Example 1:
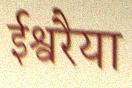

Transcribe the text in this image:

ईश्वरैया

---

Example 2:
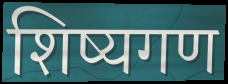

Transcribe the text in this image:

शिष्यगण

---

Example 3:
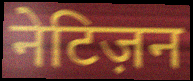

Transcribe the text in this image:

नेटिज़न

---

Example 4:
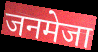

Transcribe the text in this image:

जनमेजा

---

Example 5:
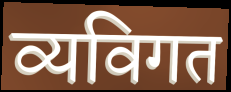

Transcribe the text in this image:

व्यविगत